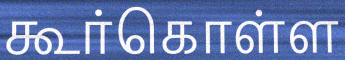
கூர்கொள்ள